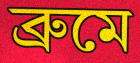
ব্রুমে